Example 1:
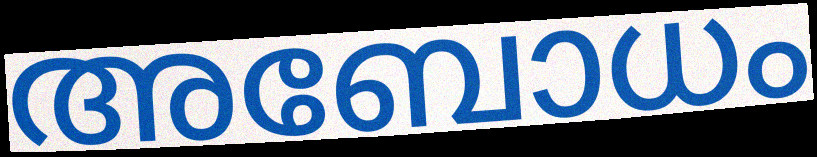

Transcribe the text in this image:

അബോധം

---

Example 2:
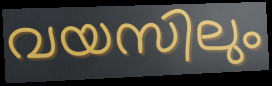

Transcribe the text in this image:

വയസിലും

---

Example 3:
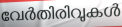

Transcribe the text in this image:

വേർതിരിവുകൾ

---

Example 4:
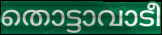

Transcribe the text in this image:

തൊട്ടാവാടീ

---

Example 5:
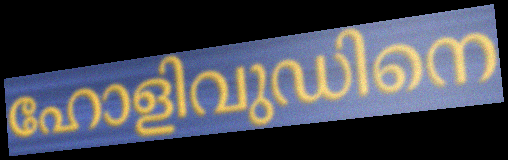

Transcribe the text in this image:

ഹോളിവുഡിനെ